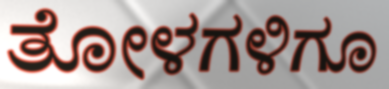
ತೋಳಗಳಿಗೂ